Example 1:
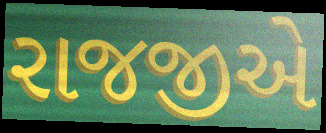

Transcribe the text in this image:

રાજજીએ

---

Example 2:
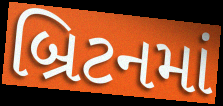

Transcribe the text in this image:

બ્રિટનમાં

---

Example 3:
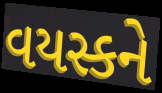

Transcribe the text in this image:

વયસ્કને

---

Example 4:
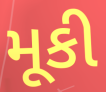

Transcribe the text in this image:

મૂકી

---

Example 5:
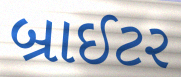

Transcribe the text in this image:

બ્રાઈટર